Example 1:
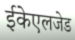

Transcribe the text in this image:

ईकेएलजेड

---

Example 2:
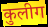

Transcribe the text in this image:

कुलीग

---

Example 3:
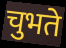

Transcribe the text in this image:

चुभते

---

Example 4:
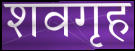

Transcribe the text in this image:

शवगृह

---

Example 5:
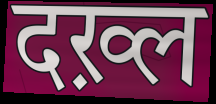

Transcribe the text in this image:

दख़्ल